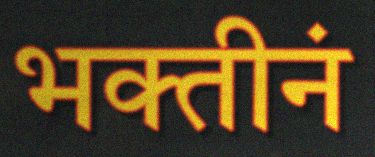
भक्तीनं